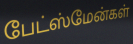
பேட்ஸ்மேன்கள்